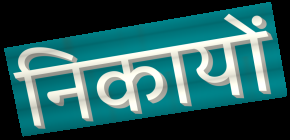
निकायों